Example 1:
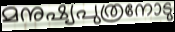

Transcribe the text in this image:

മനുഷ്യപുത്രനോടു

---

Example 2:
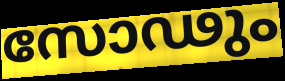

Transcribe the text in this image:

സോഢും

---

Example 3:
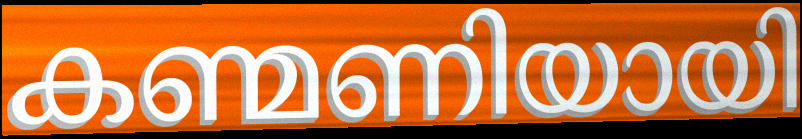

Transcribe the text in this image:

കണ്മണിയായി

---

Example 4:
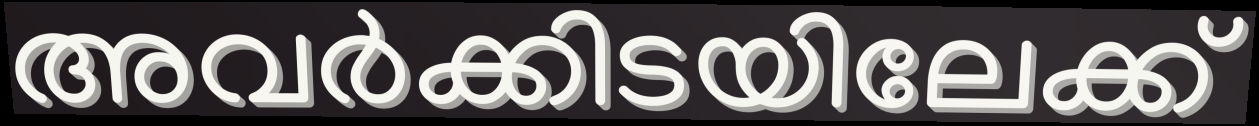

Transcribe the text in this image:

അവർക്കിടയിലേക്ക്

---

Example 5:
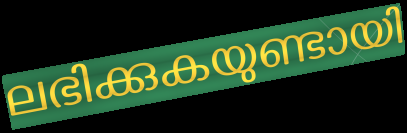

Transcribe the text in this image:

ലഭിക്കുകയുണ്ടായി